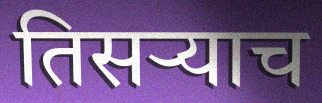
तिसऱ्याच